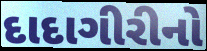
દાદાગીરીનો